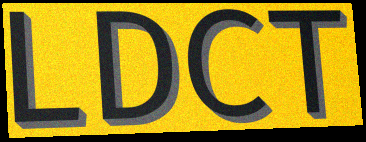
LDCT